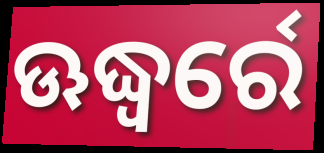
ଊଦ୍ଧ୍ୱର୍ରେ